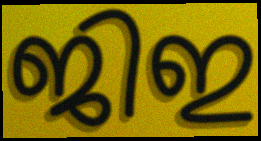
ജിഇ